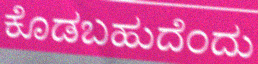
ಕೊಡಬಹುದೆಂದು